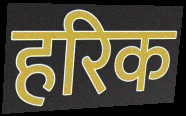
हरिक